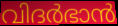
വിദർഭാൻ